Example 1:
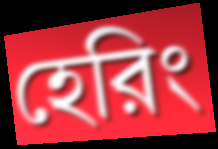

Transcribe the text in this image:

হেরিং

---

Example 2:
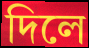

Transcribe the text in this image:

দিলে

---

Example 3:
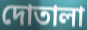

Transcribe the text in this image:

দোতালা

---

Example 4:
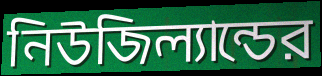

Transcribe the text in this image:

নিউজিল্যান্ডের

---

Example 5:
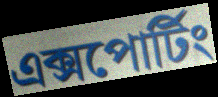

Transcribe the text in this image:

এক্সপোর্টিং